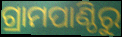
ଗ୍ରାମପାଣ୍ଠିରୁ